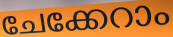
ചേക്കേറാം